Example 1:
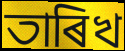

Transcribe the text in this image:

তাৰিখ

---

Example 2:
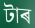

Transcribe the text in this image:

টাৰ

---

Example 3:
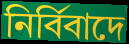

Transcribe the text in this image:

নিৰ্বিবাদে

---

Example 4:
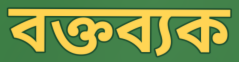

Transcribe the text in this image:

বক্তব্যক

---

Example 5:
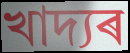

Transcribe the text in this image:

খাদ্যৰ